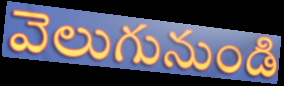
వెలుగునుండి